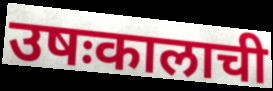
उषःकालाची